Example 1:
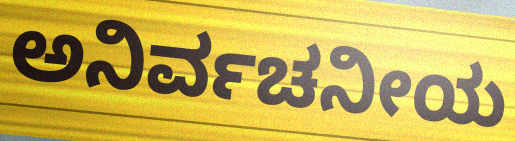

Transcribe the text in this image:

ಅನಿರ್ವಚನೀಯ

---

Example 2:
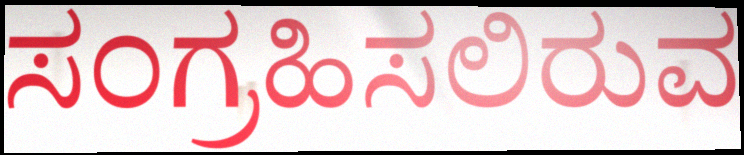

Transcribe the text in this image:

ಸಂಗ್ರಹಿಸಲಿರುವ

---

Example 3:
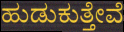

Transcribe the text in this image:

ಹುಡುಕುತ್ತೇವೆ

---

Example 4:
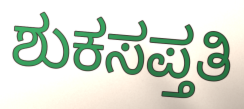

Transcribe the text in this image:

ಶುಕಸಪ್ತತಿ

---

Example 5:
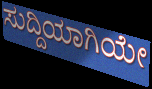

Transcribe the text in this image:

ಸುದ್ದಿಯಾಗಿಯೇ